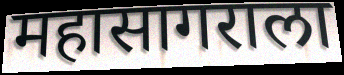
महासागराला